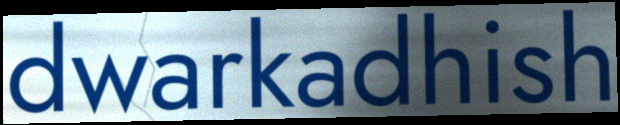
dwarkadhish